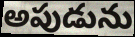
అపుడును